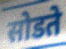
सोडते